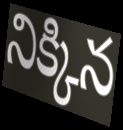
నిక్కిన